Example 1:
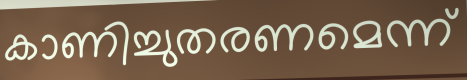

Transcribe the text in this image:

കാണിച്ചുതരണമെന്ന്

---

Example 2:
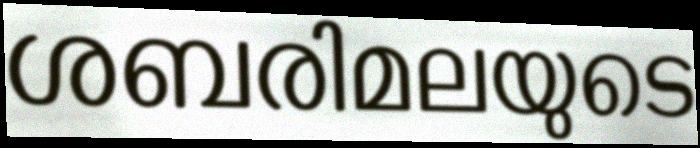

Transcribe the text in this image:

ശബരിമലയുടെ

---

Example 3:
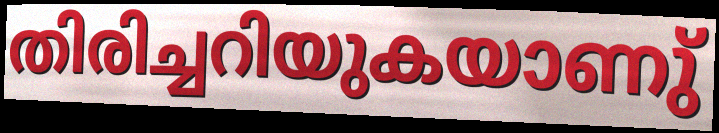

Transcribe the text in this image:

തിരിച്ചറിയുകയാണു്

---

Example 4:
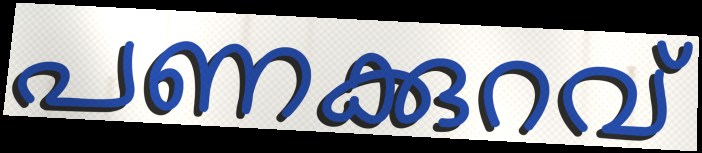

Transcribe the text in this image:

പണക്കുറവ്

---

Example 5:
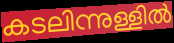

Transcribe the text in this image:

കടലിന്നുള്ളിൽ